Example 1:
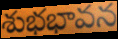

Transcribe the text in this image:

శుభభావన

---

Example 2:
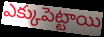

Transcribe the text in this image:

ఎక్కుపెట్టాయి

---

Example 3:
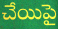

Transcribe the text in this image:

చేయిపై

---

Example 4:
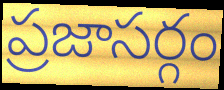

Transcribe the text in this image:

ప్రజాసర్గం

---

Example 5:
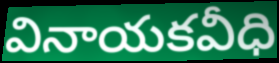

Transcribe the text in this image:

వినాయకవీధి